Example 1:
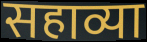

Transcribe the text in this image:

सहाव्या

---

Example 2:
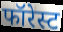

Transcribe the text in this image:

फॉरेस्ट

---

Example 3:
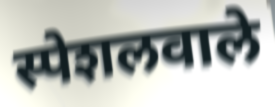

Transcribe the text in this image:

स्पेशलवाले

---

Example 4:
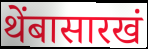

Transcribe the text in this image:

थेंबासारखं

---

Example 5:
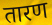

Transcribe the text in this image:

तारण